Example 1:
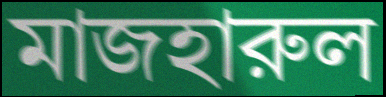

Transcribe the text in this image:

মাজহারুল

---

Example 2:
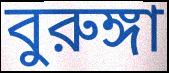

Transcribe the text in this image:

বুরুঙ্গা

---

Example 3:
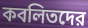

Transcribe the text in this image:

কবলিতদের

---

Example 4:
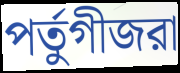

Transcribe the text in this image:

পর্তুগীজরা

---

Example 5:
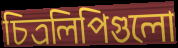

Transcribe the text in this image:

চিত্রলিপিগুলো